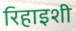
रिहाइशी